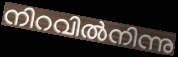
നിറവിൽനിന്നു